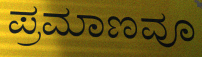
ಪ್ರಮಾಣವೂ